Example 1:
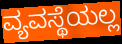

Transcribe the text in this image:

ವ್ಯವಸ್ಥೆಯಲ್ಲ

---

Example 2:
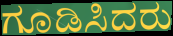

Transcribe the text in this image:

ಗೂಡಿಸಿದರು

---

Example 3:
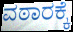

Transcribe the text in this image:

ವಠಾರಕ್ಕೆ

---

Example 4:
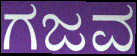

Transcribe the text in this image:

ಗಜವ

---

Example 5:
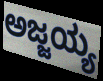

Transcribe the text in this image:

ಅಜ್ಜಯ್ಯ